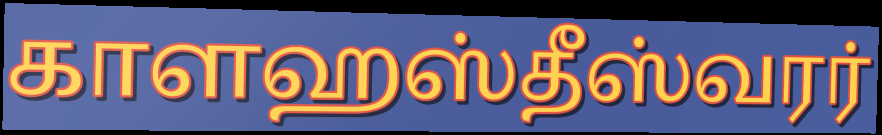
காளஹஸ்தீஸ்வரர்